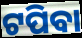
ଟପିବା